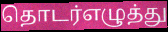
தொடர்எழுத்து